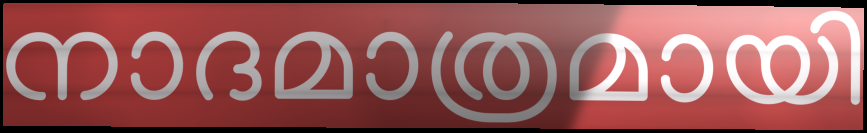
നാദമാത്രമായി